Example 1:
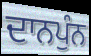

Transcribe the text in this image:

ਦਾਨਪੁੰਨ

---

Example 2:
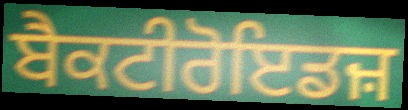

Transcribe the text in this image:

ਬੈਕਟੀਰੋਇਡਜ਼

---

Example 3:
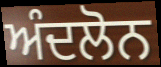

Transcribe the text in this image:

ਅੰਦਲੋਨ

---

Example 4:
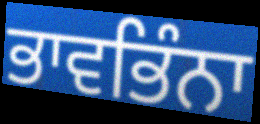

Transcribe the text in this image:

ਭਾਵਭਿੰਨਾ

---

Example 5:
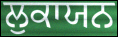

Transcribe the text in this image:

ਲੁਕਾਯਨ